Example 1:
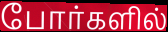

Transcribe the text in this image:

போர்களில்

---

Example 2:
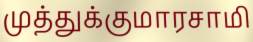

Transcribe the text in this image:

முத்துக்குமாரசாமி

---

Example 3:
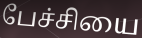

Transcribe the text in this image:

பேச்சியை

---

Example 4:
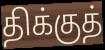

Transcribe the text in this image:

திக்குத்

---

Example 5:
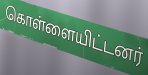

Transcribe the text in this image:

கொள்ளையிட்டனர்